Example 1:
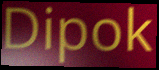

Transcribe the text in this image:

Dipok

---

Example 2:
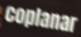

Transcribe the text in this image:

coplanar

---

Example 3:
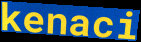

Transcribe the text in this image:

kenaci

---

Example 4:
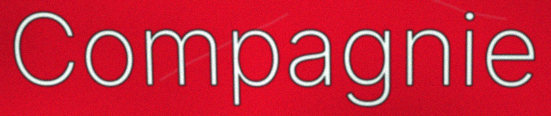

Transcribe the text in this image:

Compagnie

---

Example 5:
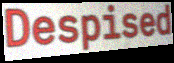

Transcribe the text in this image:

Despised